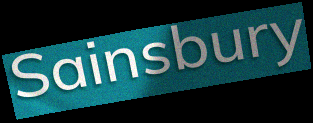
Sainsbury